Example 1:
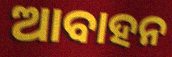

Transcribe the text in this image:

ଆବାହନ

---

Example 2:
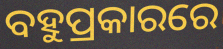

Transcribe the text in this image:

ବହୁପ୍ରକାରରେ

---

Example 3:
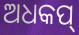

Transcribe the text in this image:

ଅଧକପ୍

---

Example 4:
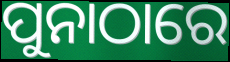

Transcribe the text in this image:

ପୁନାଠାରେ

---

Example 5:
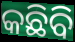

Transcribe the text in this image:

କଛିବି